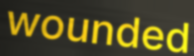
wounded